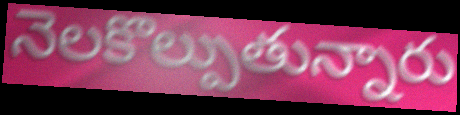
నెలకొల్పుతున్నారు